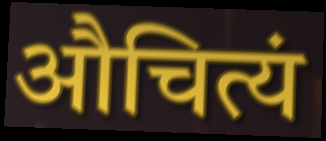
औचित्यं